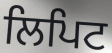
ਲਿਪਿਟ